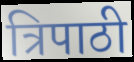
त्रिपाठी